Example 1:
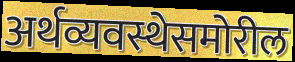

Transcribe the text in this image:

अर्थव्यवस्थेसमोरील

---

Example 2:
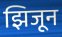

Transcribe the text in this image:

झिजून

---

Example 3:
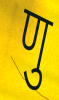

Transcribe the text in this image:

णु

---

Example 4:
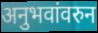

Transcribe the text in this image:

अनुभवांवरुन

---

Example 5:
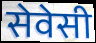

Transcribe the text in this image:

सेवेसी